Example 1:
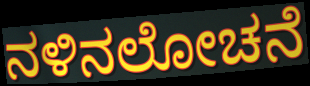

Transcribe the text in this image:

ನಳಿನಲೋಚನೆ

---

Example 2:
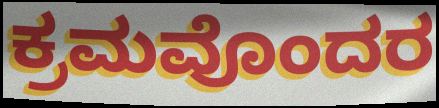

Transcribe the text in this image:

ಕ್ರಮವೊಂದರ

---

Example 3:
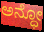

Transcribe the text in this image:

ಅನ್ಧೋ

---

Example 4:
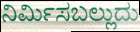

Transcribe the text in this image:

ನಿರ್ಮಿಸಬಲ್ಲುದು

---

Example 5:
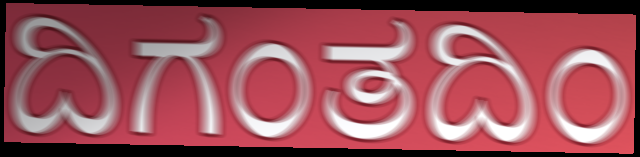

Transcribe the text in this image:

ದಿಗಂತದಿಂ